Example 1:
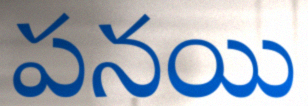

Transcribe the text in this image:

పనయి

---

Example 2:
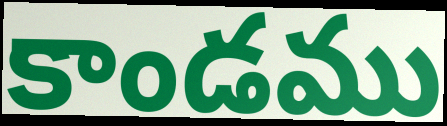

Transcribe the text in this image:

కాండము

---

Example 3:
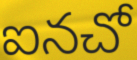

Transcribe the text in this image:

ఐనచో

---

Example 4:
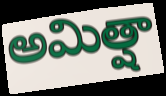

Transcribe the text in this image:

అమిత్షా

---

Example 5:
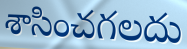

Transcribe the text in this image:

శాసించగలదు